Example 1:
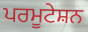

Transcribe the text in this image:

ਪਰਮੂਟੇਸ਼ਨ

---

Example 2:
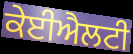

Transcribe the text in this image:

ਕੇਈਐਲਟੀ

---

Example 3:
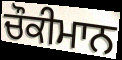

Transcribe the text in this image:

ਚੌਕੀਮਾਨ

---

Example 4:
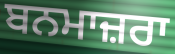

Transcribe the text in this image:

ਬਨਮਾਜ਼ਰਾ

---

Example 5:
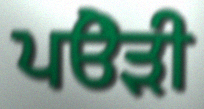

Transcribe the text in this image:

ਪੳੇੜੀ